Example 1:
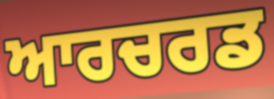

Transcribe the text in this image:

ਆਰਚਰਡ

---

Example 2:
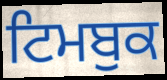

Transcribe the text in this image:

ਟਿਮਬੁਕ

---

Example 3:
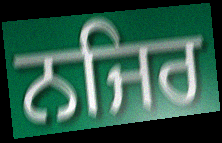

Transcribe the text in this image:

ਨਜਿਰ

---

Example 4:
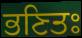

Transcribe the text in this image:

ਭਣਿਤਃ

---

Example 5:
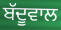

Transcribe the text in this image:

ਬੱਦੂਵਾਲ